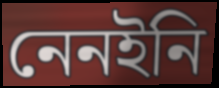
নেনইনি